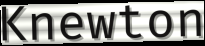
Knewton